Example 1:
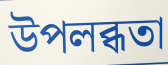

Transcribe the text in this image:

উপলব্ধতা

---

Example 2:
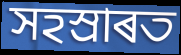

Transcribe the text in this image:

সহস্ৰাৰত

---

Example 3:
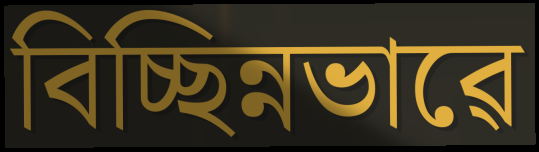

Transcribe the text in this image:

বিচ্ছিন্নভাৱে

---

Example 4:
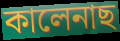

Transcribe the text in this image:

কালেনাছ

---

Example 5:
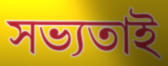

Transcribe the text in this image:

সভ্যতাই